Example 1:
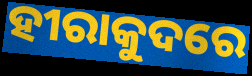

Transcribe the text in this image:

ହୀରାକୁଦରେ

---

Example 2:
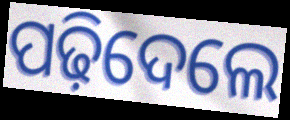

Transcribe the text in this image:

ପଢ଼ିଦେଲେ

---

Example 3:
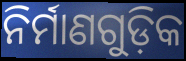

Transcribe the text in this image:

ନିର୍ମାଣଗୁଡ଼ିକ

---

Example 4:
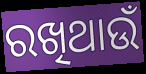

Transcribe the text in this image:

ରଖିଥାଉଁ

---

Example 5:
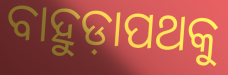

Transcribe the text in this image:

ବାହୁଡ଼ାପଥକୁ